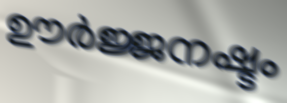
ഊർജ്ജനഷ്ടം